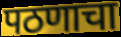
पठणाचा